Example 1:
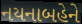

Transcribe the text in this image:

નયનાબહેને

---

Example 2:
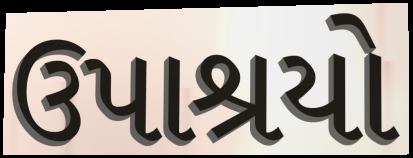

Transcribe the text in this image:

ઉપાશ્રયો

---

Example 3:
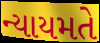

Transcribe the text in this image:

ન્યાયમતે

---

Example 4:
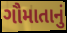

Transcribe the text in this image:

ગૌમાતાનું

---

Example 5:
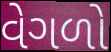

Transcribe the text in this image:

વેગળો